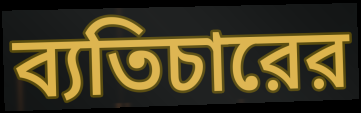
ব্যতিচারের